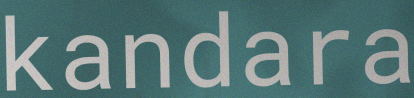
kandara